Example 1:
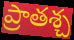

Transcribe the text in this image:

ప్రాతశ్చ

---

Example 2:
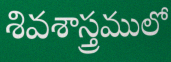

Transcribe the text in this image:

శివశాస్త్రములో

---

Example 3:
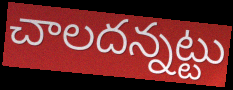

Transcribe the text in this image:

చాలదన్నట్టు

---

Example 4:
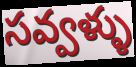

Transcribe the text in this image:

సవ్వళ్ళు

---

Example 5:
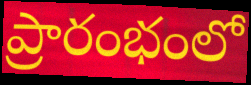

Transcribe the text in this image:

ప్రారంభంలో